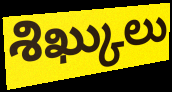
శిఖ్కులు